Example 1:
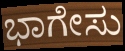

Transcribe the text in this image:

ಭಾಗೇಸು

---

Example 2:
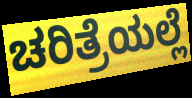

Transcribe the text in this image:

ಚರಿತ್ರೆಯಲ್ಲೆ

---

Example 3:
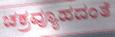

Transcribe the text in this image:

ಚಕ್ರವ್ಯೂಹದಂತೆ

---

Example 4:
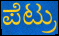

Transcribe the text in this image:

ಪೆಟ್ರು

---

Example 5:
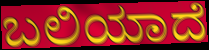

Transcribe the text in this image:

ಬಲಿಯಾದೆ